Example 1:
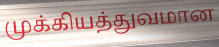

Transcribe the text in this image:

முக்கியத்துவமான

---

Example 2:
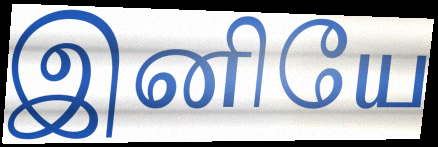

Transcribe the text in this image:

இனியே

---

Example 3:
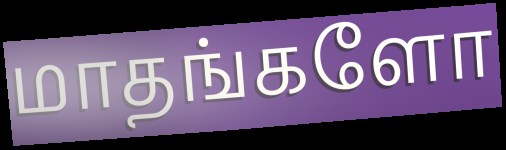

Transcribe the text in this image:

மாதங்களோ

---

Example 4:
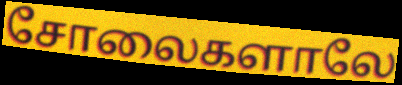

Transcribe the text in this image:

சோலைகளாலே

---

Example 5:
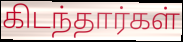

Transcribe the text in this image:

கிடந்தார்கள்